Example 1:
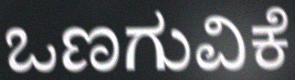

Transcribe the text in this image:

ಒಣಗುವಿಕೆ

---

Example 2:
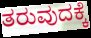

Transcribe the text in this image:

ತರುವುದಕ್ಕೆ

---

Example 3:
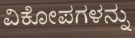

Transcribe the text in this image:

ವಿಕೋಪಗಳನ್ನು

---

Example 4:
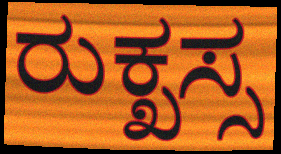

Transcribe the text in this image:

ರುಕ್ಖಸ್ಸ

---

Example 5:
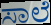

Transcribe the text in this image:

ಸಾಲೆ